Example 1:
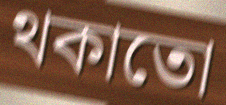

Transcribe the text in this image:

থকাতো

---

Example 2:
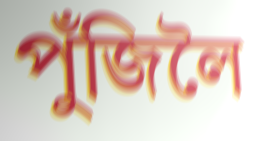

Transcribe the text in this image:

পুঁজিলৈ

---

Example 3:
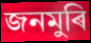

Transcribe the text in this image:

জনমুৰি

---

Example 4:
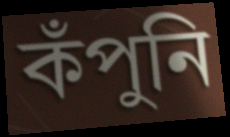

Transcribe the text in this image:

কঁপুনি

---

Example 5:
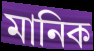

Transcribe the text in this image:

মানিক